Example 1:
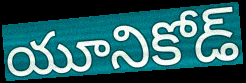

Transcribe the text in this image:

యూనికోడ్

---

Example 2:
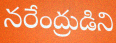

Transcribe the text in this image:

నరేంద్రుడిని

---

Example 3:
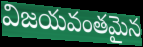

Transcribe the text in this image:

విజయవంతమైన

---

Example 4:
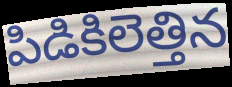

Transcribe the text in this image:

పిడికిలెత్తిన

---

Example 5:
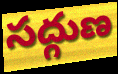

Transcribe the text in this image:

సద్గుణ